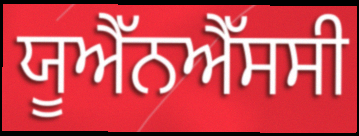
ਯੂਐੱਨਐੱਸਸੀ